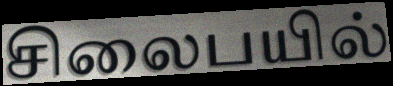
சிலைபயில்